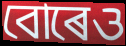
বোৰেও